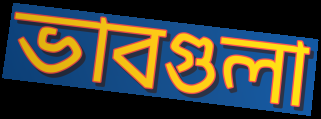
ভাবগুলা